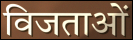
विजताओं